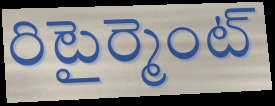
రిటైర్మెంట్